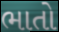
ભાતો